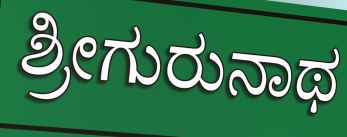
ಶ್ರೀಗುರುನಾಥ